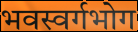
भवस्वर्गभोग